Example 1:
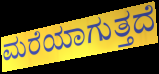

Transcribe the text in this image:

ಮರೆಯಾಗುತ್ತದೆ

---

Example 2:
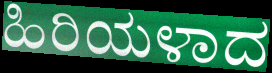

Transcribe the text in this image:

ಹಿರಿಯಳಾದ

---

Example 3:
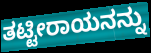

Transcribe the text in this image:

ತಟ್ಟೀರಾಯನನ್ನು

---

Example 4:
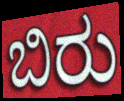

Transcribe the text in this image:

ಬಿರು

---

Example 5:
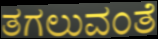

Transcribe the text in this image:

ತಗಲುವಂತೆ